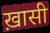
ख़ासी